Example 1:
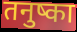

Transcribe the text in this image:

तनुष्का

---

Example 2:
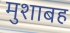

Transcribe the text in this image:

मुशाबह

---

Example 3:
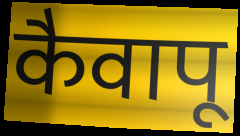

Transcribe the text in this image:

कैवापू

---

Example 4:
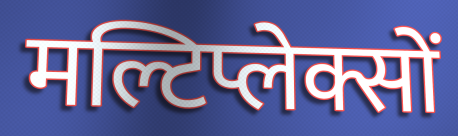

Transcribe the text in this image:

मल्टिप्लेक्सों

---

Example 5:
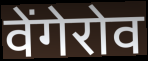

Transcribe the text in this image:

वेंगेरोव